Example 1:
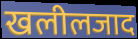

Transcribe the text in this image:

खलीलजाद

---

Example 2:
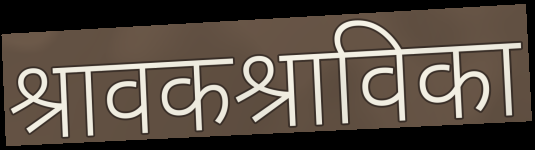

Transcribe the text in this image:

श्रावकश्राविका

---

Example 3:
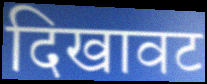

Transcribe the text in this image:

दिखावट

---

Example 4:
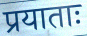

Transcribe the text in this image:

प्रयाताः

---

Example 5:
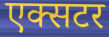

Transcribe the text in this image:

एक्सटर